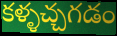
కళ్ళచ్చగడం